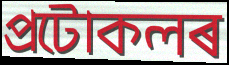
প্ৰটোকলৰ